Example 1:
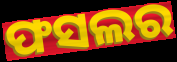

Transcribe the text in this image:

ଫସଲର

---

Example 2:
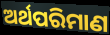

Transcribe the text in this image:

ଅର୍ଥପରିମାଣ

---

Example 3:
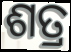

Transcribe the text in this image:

ଶତ୍ର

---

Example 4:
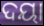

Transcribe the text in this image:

ଦୟା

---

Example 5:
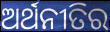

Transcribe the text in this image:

ଅର୍ଥନୀତିର